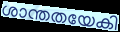
ശാന്തതയേകി